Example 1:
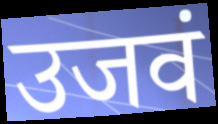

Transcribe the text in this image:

उजवं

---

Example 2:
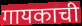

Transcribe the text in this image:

गायकाची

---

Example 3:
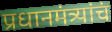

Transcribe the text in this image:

प्रधानमंत्र्यांचं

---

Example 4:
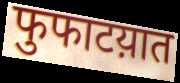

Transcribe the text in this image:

फुफाटय़ात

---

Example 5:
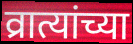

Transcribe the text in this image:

व्रात्यांच्या